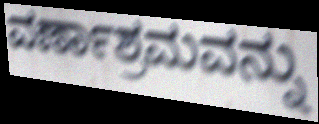
ವರ್ಣಾಶ್ರಮವನ್ನು